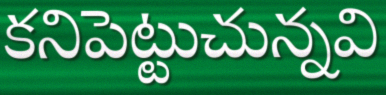
కనిపెట్టుచున్నవి